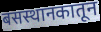
बसस्थानकातून